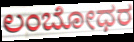
ಲಂಬೋಧರ